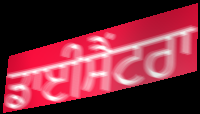
ਡਾਈਸੈਂਟਰਾ